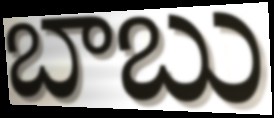
బాబు